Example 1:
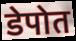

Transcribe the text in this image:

डेपोत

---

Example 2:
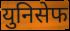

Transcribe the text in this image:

युनिसेफ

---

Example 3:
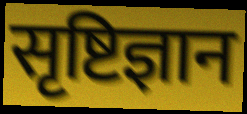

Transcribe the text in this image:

सृष्टिज्ञान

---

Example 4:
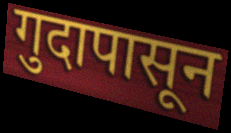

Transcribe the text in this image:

गुदापासून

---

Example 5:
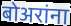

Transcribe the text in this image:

बोअरांना